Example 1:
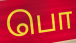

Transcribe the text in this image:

பொ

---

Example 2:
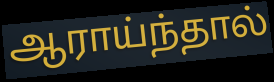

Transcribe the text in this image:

ஆராய்ந்தால்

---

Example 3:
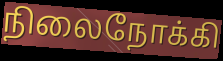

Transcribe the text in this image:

நிலைநோக்கி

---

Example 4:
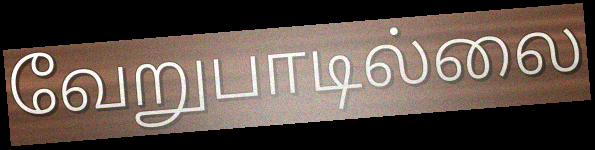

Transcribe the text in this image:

வேறுபாடில்லை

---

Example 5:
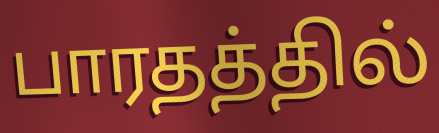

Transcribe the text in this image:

பாரதத்தில்